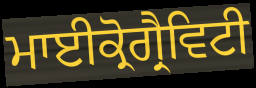
ਮਾਈਕ੍ਰੋਗ੍ਰੈਵਿਟੀ